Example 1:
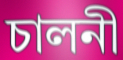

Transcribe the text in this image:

চালনী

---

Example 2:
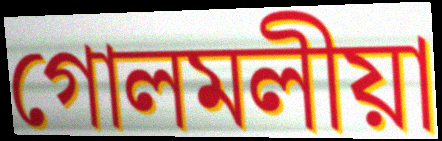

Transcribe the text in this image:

গোলমলীয়া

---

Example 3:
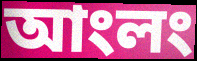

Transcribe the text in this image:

আংলং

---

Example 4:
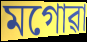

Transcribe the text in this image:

মগোৱা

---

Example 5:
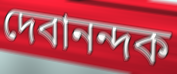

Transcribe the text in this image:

দেবানন্দক